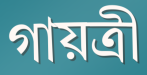
গায়ত্রী